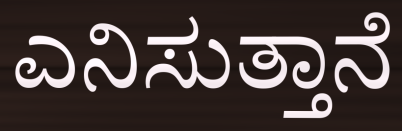
ಎನಿಸುತ್ತಾನೆ